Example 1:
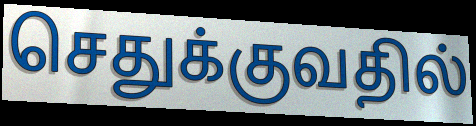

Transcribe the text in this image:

செதுக்குவதில்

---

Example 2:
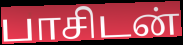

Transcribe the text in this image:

பாசிடன்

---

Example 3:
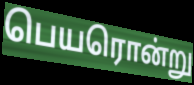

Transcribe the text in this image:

பெயரொன்று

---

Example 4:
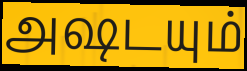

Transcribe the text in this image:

அஷடயும்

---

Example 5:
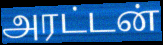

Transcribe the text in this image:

அரட்டன்